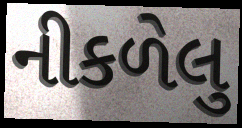
નીકળેલુ